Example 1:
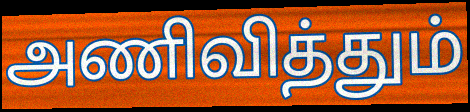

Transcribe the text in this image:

அணிவித்தும்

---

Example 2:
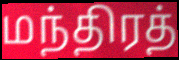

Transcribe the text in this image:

மந்திரத்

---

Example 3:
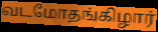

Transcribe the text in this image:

வடமோதங்கிழார்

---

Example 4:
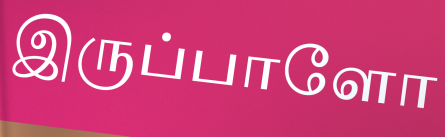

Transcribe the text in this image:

இருப்பாளோ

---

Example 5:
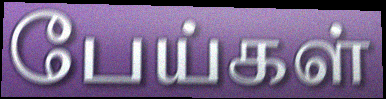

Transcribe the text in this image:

பேய்கள்